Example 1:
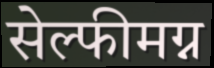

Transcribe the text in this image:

सेल्फीमग्न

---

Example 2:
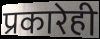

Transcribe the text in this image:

प्रकारेही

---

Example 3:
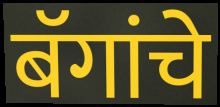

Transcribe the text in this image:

बॅगांचे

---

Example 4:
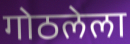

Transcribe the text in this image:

गोठलेला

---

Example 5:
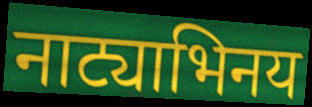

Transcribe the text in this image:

नाट्याभिनय